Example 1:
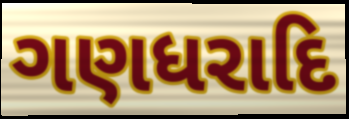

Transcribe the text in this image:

ગણધરાદિ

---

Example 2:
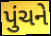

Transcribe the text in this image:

પુંચને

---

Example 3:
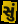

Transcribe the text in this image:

સું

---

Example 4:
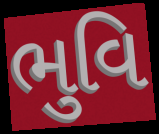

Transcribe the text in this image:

ભુવિ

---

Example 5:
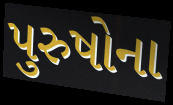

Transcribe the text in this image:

પુરુષોના